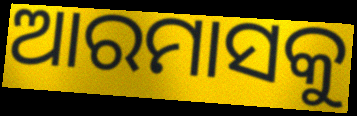
ଆରମାସକୁ